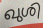
ഖുശി